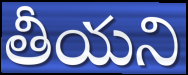
తీయని